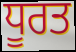
ਧੂਰਤ